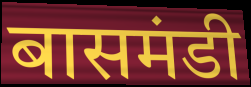
बासमंडी